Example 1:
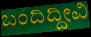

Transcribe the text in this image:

ಬಂದಿದ್ದೀವಿ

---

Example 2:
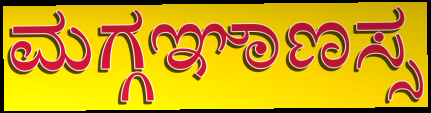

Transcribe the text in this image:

ಮಗ್ಗಞಾಣಸ್ಸ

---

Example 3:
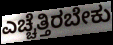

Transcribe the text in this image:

ಎಚ್ಚೆತ್ತಿರಬೇಕು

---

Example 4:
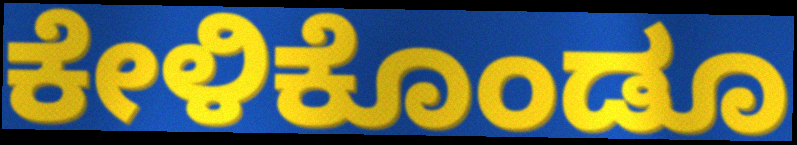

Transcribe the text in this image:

ಕೇಳಿಕೊಂಡೂ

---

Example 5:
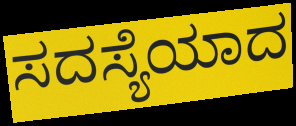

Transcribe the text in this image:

ಸದಸ್ಯೆಯಾದ